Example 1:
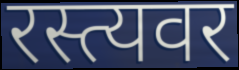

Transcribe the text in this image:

रस्त्यवर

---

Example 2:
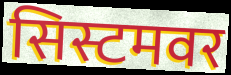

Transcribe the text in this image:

सिस्टमवर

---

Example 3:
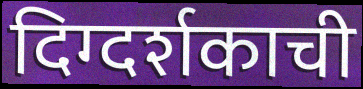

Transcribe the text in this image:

दिग्दर्शकाची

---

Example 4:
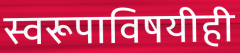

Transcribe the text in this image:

स्वरूपाविषयीही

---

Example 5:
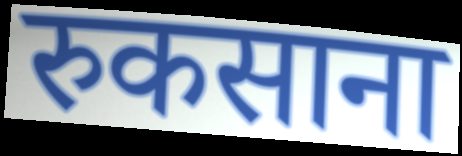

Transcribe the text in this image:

रुकसाना